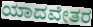
ಯಾದವೇತರ